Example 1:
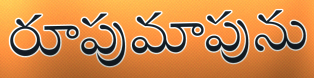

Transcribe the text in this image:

రూపుమాపును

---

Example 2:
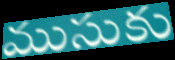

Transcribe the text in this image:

ముసుకు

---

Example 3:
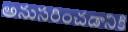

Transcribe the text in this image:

అనుసరించడానికి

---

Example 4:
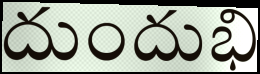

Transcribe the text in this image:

దుందుభి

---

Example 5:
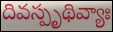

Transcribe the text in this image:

దివస్పృథివ్యాః